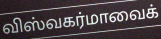
விஸ்வகர்மாவைக்